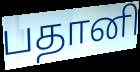
பதானி